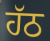
ਹੱਠ